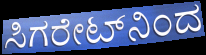
ಸಿಗರೇಟ್‌ನಿಂದ